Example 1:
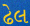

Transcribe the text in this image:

ઢેલ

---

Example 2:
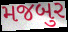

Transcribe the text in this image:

મજબુર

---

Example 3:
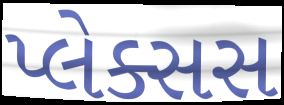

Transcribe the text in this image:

પ્લેક્સસ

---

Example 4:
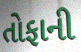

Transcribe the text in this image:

તોફાની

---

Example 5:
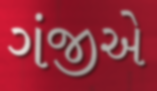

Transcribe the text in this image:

ગંજીએ